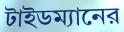
টাইডম্যানের